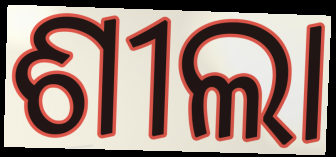
ଶୀଲା